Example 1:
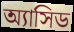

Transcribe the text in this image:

অ্যাসিড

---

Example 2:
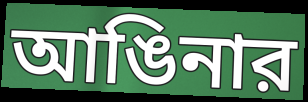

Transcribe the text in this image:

আঙিনার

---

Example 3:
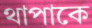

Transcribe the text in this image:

থাপাকে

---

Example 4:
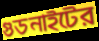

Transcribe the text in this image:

গুডনাইটের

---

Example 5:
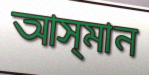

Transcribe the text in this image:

আস্‌মান